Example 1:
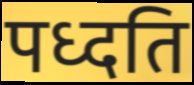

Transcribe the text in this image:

पध्दति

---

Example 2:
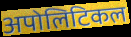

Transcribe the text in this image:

अपोलिटिकल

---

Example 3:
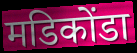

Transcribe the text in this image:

मडिकोंडा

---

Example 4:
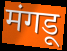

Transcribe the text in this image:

मंगडू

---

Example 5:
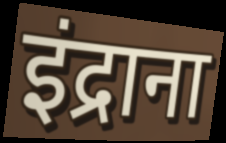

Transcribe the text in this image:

इंद्राना